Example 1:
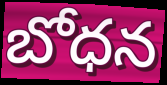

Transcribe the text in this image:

బోధన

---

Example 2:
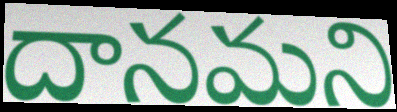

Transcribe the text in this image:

దానమని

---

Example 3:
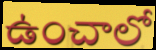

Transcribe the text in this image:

ఉంచాలో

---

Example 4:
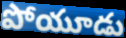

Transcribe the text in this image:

పోయూడు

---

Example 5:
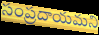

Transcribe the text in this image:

సంప్రదాయమని